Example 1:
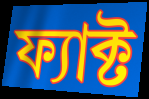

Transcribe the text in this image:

ফ্যাক্ট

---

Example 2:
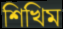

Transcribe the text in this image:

শিখিম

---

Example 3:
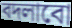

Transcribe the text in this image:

বদলাবো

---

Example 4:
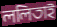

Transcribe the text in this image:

ললিতাই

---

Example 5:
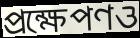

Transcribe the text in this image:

প্রক্ষেপণও